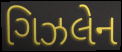
ગિઝલેન